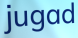
jugad